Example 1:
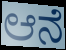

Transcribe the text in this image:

ಆನೆ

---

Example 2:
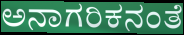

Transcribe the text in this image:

ಅನಾಗರಿಕನಂತೆ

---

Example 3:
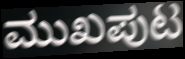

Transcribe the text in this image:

ಮುಖಪುಟ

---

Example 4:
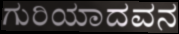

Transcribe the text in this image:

ಗುರಿಯಾದವನ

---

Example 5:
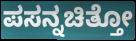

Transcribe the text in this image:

ಪಸನ್ನಚಿತ್ತೋ